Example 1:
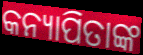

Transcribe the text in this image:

କନ୍ୟାପିତାଙ୍କ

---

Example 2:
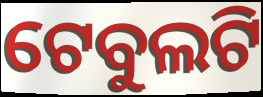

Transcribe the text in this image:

ଟେବୁଲଟି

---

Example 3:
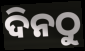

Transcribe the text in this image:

ଦିନଠୁ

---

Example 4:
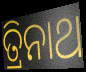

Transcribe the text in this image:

ତ୍ରିନାଥ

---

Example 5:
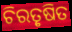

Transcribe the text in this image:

ଚିରତୃଷିତ